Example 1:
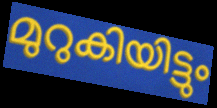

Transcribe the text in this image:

മുറുകിയിട്ടും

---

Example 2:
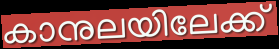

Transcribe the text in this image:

കാനുലയിലേക്ക്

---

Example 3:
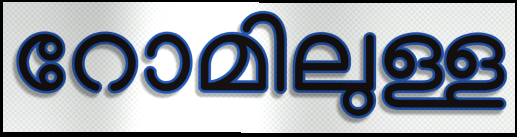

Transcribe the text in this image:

റോമിലുള്ള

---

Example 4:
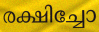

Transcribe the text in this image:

രക്ഷിച്ചോ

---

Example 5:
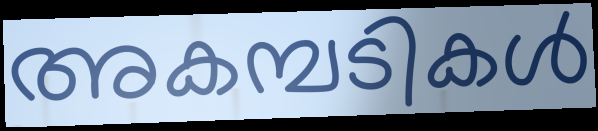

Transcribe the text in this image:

അകമ്പടികൾ